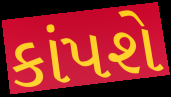
કાંપશે